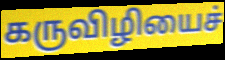
கருவிழியைச்